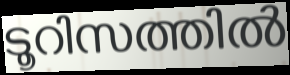
ടൂറിസത്തിൽ